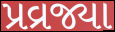
પ્રવ્રજ્યા